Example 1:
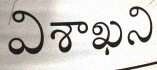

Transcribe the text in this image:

విశాఖని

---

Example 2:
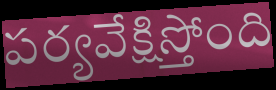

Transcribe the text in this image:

పర్యవేక్షిస్తోంది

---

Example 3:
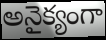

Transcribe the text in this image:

అనైక్యంగా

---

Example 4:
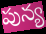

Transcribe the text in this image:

పున్య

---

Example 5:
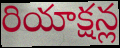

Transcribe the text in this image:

రియాక్షన్ల